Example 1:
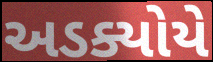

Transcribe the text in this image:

અડક્યોયે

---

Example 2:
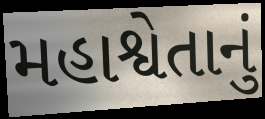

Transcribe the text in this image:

મહાશ્વેતાનું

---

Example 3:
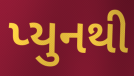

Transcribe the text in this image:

પ્યુનથી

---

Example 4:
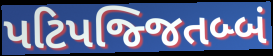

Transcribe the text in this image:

પટિપજ્જિતબ્બં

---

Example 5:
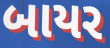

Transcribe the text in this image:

બાયર